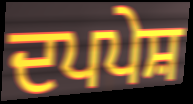
ਦਪਪੇਸ਼